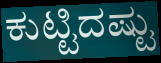
ಕುಟ್ಟಿದಷ್ಟು